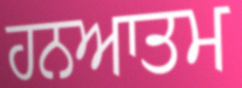
ਹਨਆਤਮ